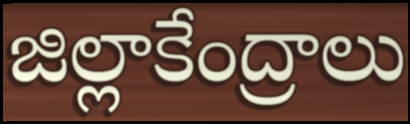
జిల్లాకేంద్రాలు